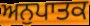
ਅਨੁਪਾਤਕ